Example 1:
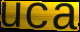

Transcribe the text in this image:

uca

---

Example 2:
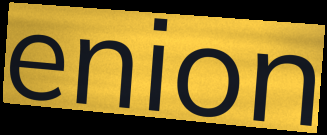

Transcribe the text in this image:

enion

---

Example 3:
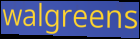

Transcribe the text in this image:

walgreens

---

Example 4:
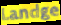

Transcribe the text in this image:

Landge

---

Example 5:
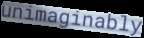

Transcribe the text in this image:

unimaginably